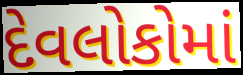
દેવલોકોમાં